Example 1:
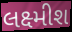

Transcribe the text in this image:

લક્ષ્મીશ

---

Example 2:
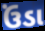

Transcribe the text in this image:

ઉંડા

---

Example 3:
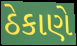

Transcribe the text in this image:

ઠેકાણે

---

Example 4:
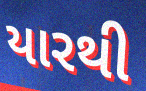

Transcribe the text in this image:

યારથી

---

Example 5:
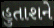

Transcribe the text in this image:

હુતાશને